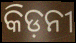
କିଡ଼ନୀ